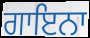
ਗਾਇਨਾ